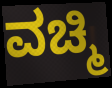
ವಚ್ಮಿ